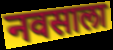
नवसाला